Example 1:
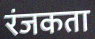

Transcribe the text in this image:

रंजकता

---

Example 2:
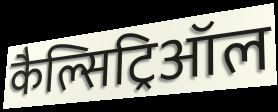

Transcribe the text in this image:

कैल्सिट्रिऑल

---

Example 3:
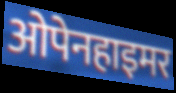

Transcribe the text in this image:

ओपेनहाइमर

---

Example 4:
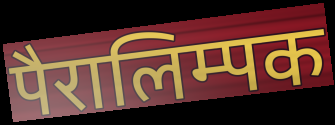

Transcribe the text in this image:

पैरालिम्पक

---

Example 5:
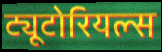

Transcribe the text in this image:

ट्यूटोरियल्स